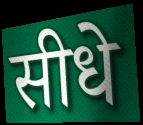
सीधे